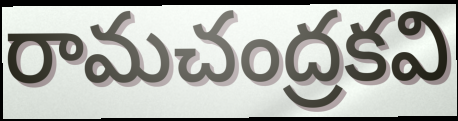
రామచంద్రకవి